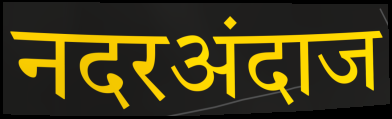
नदरअंदाज